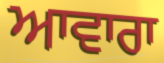
ਆਵਾਰਾ